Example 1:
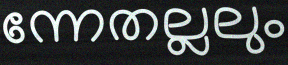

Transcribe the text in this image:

ന്നേതല്ലലും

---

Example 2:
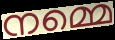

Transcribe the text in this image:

നമ്മെ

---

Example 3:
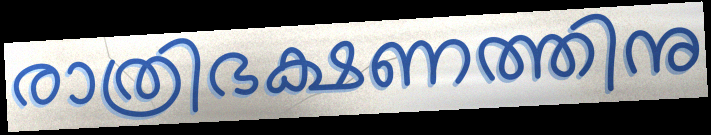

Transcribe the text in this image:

രാത്രിഭക്ഷണത്തിനു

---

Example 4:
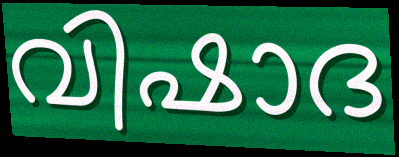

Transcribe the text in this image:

വിഷാദ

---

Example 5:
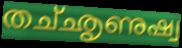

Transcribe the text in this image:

തച്ഛൃണുഷ്വ